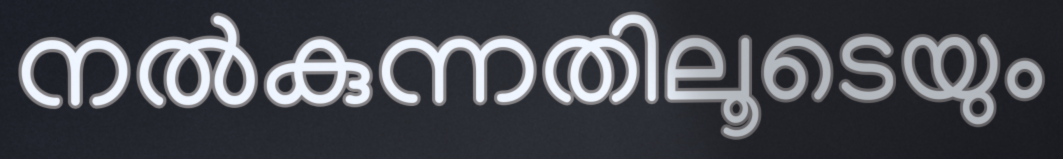
നൽകുന്നതിലൂടെയും